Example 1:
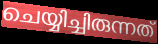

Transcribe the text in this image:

ചെയ്യിച്ചിരുന്നത്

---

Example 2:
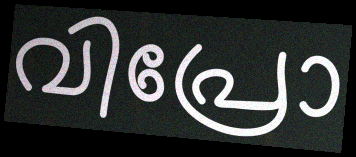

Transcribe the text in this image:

വിപ്രോ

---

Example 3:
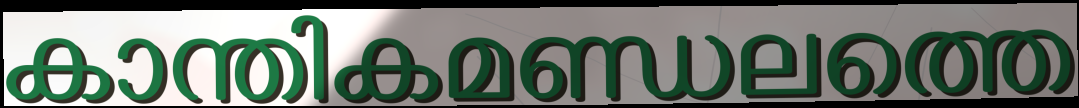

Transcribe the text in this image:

കാന്തികമണ്ഡലത്തെ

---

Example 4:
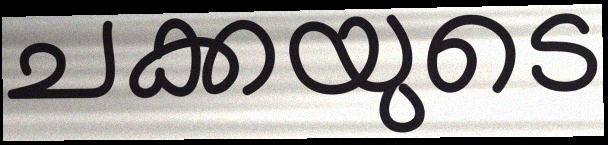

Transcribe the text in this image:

ചക്കയുടെ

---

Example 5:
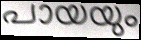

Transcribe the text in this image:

പായയും